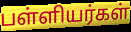
பள்ளியர்கள்